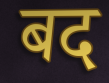
बद